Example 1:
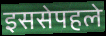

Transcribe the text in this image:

इससेपहले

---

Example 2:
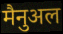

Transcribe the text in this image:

मैनुअल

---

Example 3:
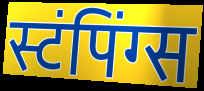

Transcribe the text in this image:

स्टंपिंग्स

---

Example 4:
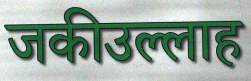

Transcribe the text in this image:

जकीउल्लाह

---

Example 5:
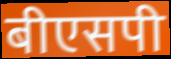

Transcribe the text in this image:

बीएसपी